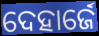
ଦେହାର୍ଜେ